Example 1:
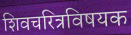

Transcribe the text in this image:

शिवचरित्रविषयक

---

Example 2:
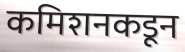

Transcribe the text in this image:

कमिशनकडून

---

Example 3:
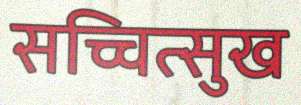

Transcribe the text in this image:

सच्चित्सुख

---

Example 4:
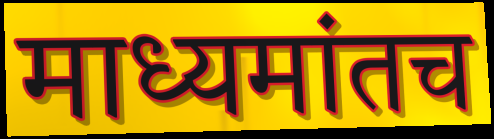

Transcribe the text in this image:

माध्यमांतच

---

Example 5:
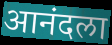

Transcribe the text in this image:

आनंदला